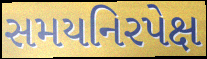
સમયનિરપેક્ષ